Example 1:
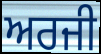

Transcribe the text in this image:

ਅਰਜੀ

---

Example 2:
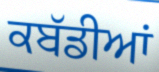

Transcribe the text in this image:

ਕਬੱਡੀਆਂ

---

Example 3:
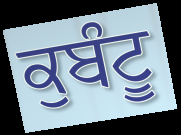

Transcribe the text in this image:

ਕੁਬੰਟੂ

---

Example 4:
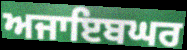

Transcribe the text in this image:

ਅਜਾਇਬਘਰ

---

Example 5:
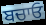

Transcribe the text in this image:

ਬਚਾਓ